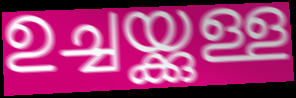
ഉച്ചയ്ക്കുള്ള